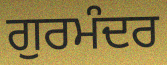
ਗੁਰਮੰਦਰ